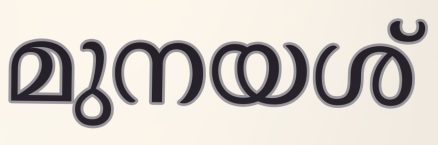
മുനയശ്